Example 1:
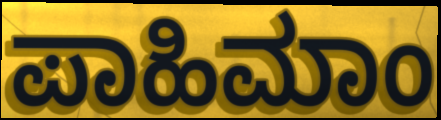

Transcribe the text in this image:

ಪಾಹಿಮಾಂ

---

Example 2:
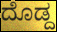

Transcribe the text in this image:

ದೊಡ್ದ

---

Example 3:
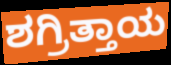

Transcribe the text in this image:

ಶಗ್ರಿತ್ತಾಯ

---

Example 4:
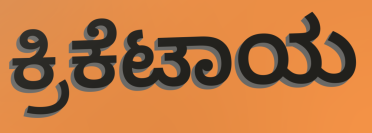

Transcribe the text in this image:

ಕ್ರಿಕೆಟಾಯ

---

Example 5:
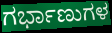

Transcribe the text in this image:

ಗರ್ಭಾಣುಗಳ